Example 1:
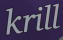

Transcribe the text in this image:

krill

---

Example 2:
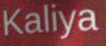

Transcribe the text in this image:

Kaliya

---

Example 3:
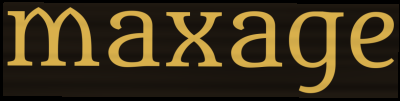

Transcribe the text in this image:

maxage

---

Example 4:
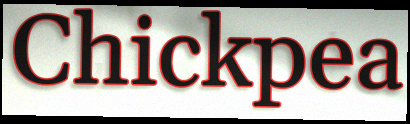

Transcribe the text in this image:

Chickpea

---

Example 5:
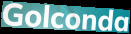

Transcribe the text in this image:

Golconda